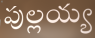
పుల్లయ్య